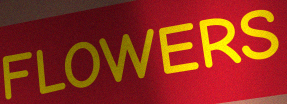
FLOWERS